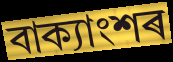
বাক্যাংশৰ